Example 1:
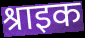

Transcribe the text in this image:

श्राइक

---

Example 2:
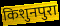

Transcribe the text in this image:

किशुनपुरा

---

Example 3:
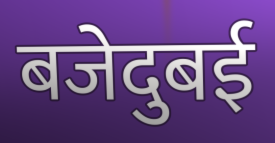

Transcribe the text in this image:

बजेदुबई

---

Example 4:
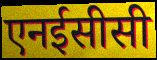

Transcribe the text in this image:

एनईसीसी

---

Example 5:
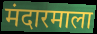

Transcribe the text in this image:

मंदारमाला